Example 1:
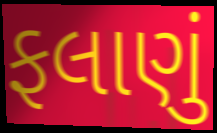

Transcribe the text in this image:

ફલાણું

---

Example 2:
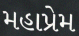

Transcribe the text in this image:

મહાપ્રેમ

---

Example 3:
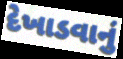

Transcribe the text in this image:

દેખાડવાનું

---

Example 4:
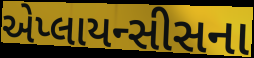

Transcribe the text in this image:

એપ્લાયન્સીસના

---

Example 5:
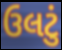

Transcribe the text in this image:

ઉલટું